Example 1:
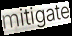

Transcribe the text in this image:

mitigate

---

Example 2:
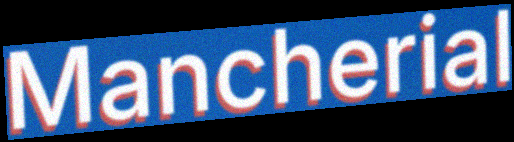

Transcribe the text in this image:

Mancherial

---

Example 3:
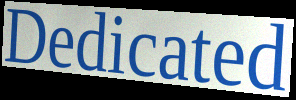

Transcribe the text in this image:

Dedicated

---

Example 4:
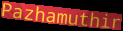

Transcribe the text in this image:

Pazhamuthir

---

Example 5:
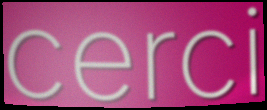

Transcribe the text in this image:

cerci